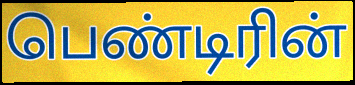
பெண்டிரின்